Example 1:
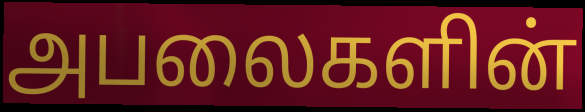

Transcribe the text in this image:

அபலைகளின்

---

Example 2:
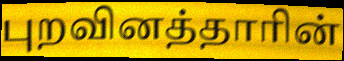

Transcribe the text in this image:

புறவினத்தாரின்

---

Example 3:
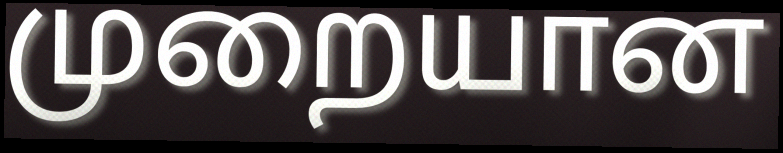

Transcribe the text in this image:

முறையான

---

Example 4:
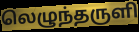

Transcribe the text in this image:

லெழுந்தருளி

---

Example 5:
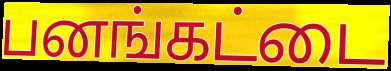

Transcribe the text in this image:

பனங்கட்டை